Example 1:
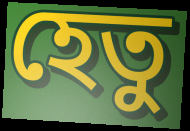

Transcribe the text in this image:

হেতু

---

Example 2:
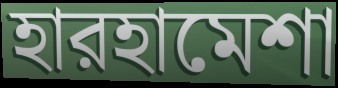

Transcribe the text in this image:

হারহামেশা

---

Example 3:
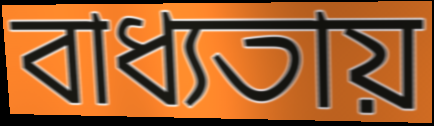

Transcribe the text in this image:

বাধ্যতায়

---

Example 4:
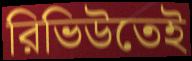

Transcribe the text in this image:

রিভিউতেই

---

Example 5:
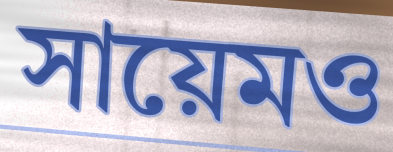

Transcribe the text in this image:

সায়েমও